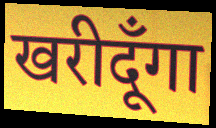
खरीदूँगा